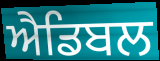
ਐਡਿਬਲ